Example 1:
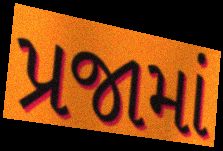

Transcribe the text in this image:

પ્રજામાં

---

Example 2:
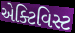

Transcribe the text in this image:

એક્ટિવિસ્ટ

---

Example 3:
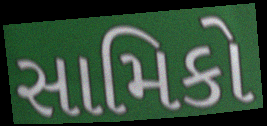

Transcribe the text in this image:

સામિકો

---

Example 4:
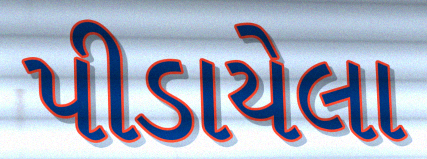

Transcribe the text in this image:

પીડાયેલા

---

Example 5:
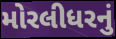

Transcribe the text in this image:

મોરલીધરનું